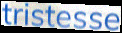
tristesse